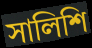
সালিশি